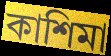
কাশিমা